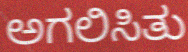
ಅಗಲಿಸಿತು